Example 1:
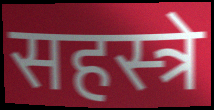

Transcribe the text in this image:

सहस्त्रे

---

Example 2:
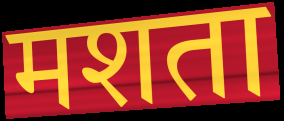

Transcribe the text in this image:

मशता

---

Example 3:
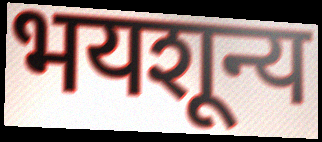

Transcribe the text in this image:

भयशून्य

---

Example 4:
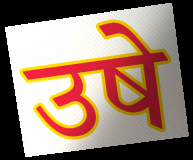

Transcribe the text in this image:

उषे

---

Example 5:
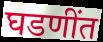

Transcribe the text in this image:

घडणींत